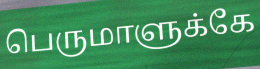
பெருமாளுக்கே